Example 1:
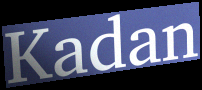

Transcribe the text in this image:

Kadan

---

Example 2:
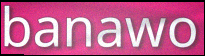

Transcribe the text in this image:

banawo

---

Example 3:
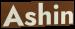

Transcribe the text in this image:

Ashin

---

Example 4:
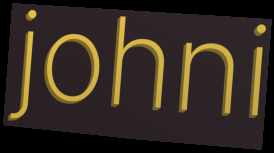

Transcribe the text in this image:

johni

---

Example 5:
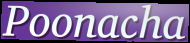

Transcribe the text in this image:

Poonacha